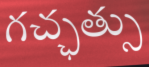
గచ్ఛత్సు